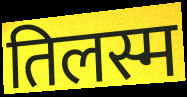
तिलस्म